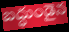
బద్ధుండైన